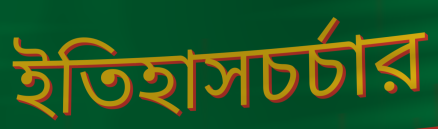
ইতিহাসচর্চার